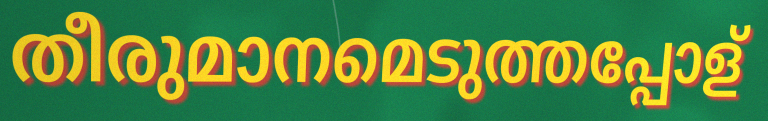
തീരുമാനമെടുത്തപ്പോള്